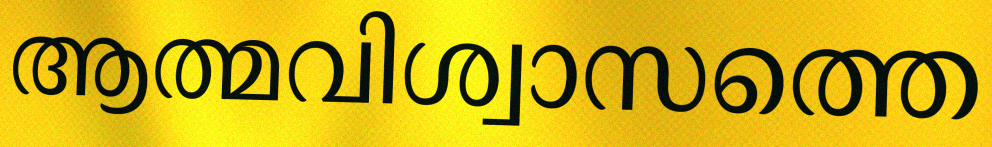
ആത്മവിശ്വാസത്തെ